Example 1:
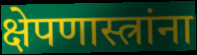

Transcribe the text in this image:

क्षेपणास्त्रांना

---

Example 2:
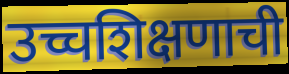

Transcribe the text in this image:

उच्चशिक्षणाची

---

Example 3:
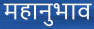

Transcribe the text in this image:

महानुभाव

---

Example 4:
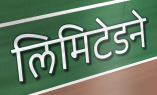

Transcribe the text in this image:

लिमिटेडने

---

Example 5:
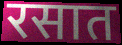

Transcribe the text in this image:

रसात